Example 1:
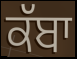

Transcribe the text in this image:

ਕੱਬਾ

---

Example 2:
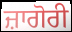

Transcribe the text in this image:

ਜ਼ਾਗੋਰੀ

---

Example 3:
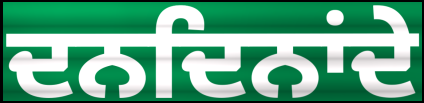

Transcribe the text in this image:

ਦਨਦਿਨਾਂਦੇ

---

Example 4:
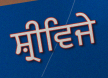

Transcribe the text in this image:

ਸ਼੍ਰੀਵਿਜੇ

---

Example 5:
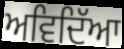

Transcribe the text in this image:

ਅਵਿਦਿੱਆ